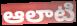
ఆలాటి